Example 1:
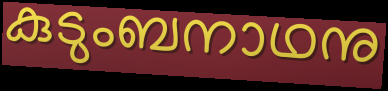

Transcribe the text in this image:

കുടുംബനാഥനു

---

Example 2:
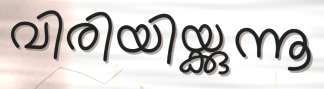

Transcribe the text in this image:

വിരിയിയ്ക്കുന്നൂ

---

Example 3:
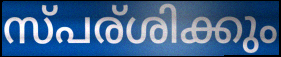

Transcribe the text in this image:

സ്പര്ശിക്കും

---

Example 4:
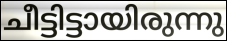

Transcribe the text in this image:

ചീട്ടിട്ടായിരുന്നു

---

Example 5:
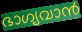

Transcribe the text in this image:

ഭാഗ്യവാൻ